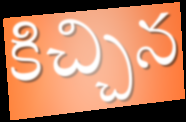
కిచ్చిన